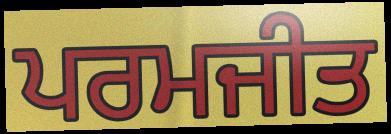
ਪਰਮਜੀਤ